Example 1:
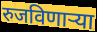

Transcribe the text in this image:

रुजविणाऱ्या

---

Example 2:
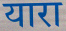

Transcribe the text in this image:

यारा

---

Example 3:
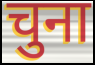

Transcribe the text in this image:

चुना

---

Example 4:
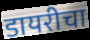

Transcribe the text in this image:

डायरीचा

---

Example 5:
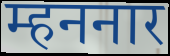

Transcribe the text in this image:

म्हननार